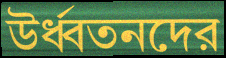
উর্ধ্বতনদের